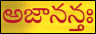
అజానన్తః